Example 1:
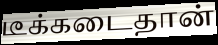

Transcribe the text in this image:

டீக்கடைதான்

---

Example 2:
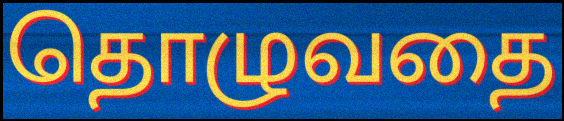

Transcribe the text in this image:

தொழுவதை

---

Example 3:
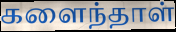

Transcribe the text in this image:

களைந்தாள்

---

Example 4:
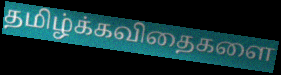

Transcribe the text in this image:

தமிழ்க்கவிதைகளை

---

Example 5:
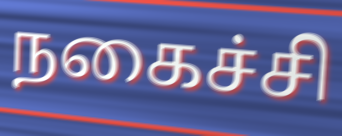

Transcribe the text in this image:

நகைச்சி